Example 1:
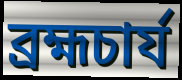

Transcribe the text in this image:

ব্রহ্মচার্য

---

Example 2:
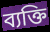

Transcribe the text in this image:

ব্যক্তি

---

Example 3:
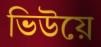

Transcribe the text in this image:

ভিউয়ে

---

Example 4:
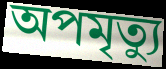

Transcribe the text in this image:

অপমৃত্যু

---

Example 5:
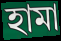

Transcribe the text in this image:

হামা